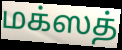
மக்ஸத்